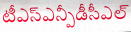
టీఎస్ఎన్పీడీసీఎల్